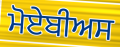
ਮੋਏਬੀਅਸ